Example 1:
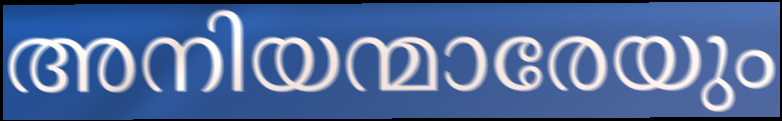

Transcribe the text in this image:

അനിയന്മാരേയും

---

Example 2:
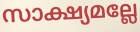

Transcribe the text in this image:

സാക്ഷ്യമല്ലേ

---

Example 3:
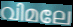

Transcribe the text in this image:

വിമലേ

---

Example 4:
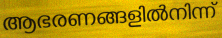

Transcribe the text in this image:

ആഭരണങ്ങളിൽനിന്ന്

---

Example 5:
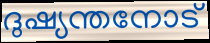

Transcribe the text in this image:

ദുഷ്യന്തനോട്